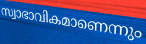
സ്വാഭാവികമാണെന്നും